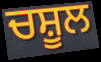
ਚਸ਼ੂਲ